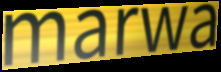
marwa